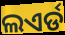
ଲଏର୍ଡ